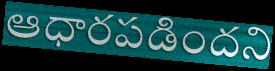
ఆధారపడిందని